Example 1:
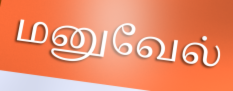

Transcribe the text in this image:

மனுவேல்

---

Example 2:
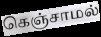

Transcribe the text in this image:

கெஞ்சாமல்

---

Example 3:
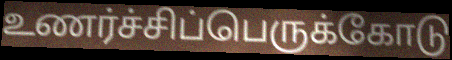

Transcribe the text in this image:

உணர்ச்சிப்பெருக்கோடு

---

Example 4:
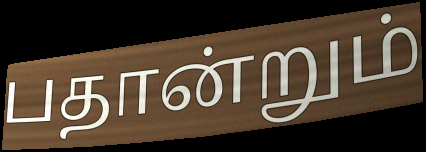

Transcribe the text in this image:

பதான்றும்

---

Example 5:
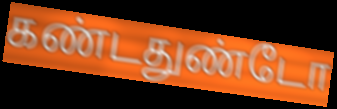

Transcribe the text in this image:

கண்டதுண்டோ